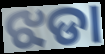
ଝଡା